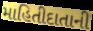
માહિતીદાતાની